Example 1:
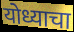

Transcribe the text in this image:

योध्याचा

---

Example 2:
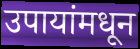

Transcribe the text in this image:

उपायांमधून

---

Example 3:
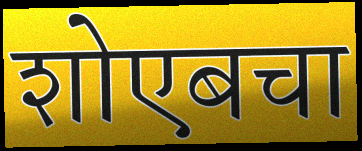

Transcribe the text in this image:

शोएबचा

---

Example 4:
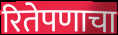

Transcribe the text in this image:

रितेपणाचा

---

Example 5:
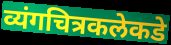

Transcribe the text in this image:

व्यंगचित्रकलेकडे